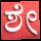
ಶೇ